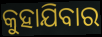
କୁହାଯିବାର